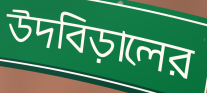
উদবিড়ালের